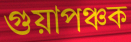
গুয়াপঞ্চক